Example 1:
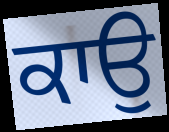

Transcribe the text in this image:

ਕਾਉ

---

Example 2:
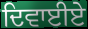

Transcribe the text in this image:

ਦਿਵਾਈਏ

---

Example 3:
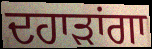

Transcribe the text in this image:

ਦਹਾੜਾਂਗਾ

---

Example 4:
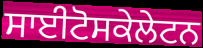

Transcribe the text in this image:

ਸਾਈਟੋਸਕੇਲੇਟਨ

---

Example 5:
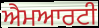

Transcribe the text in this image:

ਐਮਆਰਟੀ